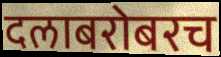
दलाबरोबरच